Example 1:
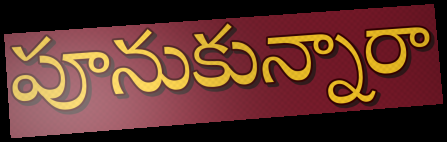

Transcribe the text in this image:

పూనుకున్నారా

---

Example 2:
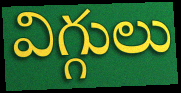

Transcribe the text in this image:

విగ్గులు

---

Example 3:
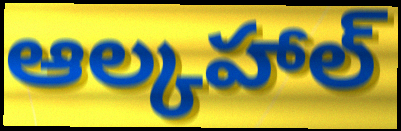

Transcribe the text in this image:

ఆల్కహాల్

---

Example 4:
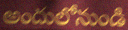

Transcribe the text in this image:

అందులోనుండి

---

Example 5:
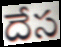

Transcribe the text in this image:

దేస